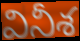
వినీశ